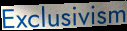
Exclusivism